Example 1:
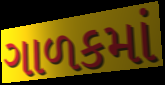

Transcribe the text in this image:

ગાળકમાં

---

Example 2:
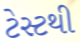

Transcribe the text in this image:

ટેસ્ટથી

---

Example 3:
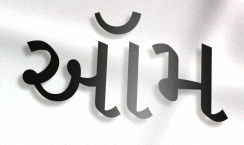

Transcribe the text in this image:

ઑમ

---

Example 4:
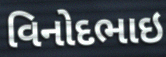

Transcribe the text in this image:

વિનોદભાઇ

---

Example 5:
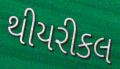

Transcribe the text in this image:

થીયરીકલ